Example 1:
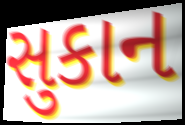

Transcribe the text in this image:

સુકાન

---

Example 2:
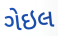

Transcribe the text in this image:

ગેઇલ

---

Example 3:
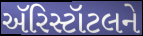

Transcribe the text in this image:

ઍરિસ્ટૉટલને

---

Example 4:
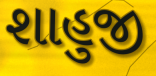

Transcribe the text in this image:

શાહુજી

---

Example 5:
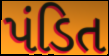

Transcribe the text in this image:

પંડિત